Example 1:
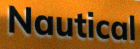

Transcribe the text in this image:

Nautical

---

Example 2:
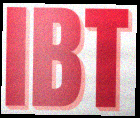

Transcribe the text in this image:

IBT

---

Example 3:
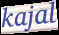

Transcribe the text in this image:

kajal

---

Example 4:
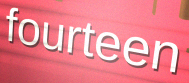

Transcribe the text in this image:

fourteen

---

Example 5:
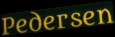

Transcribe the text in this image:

Pedersen